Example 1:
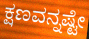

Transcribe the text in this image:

ಕ್ಷಣವನ್ನಷ್ಟೇ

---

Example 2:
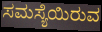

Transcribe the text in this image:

ಸಮಸ್ಯೆಯಿರುವ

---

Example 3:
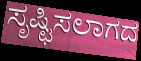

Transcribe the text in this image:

ಸೃಷ್ಟಿಸಲಾಗದ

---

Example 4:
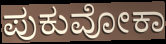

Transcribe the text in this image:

ಪುಕುವೋಕಾ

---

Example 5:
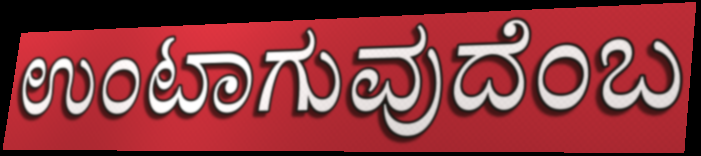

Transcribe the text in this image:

ಉಂಟಾಗುವುದೆಂಬ